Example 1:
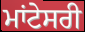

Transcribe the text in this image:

ਮਾਂਟੇਸਰੀ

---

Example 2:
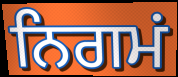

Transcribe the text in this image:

ਨਿਗਮਂ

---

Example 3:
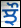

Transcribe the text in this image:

ਝੌ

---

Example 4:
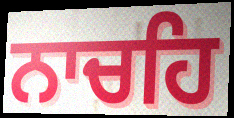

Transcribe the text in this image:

ਨਾਚਹਿ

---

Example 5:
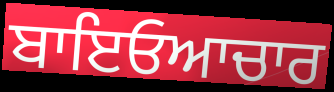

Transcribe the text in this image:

ਬਾਇਓਆਚਾਰ